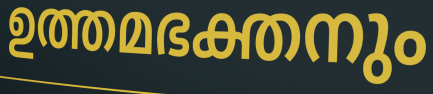
ഉത്തമഭക്തനും